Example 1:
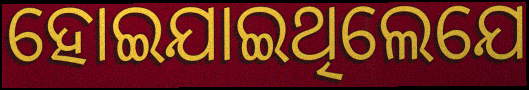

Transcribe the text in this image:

ହୋଇଯାଇଥିଲେଯେ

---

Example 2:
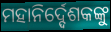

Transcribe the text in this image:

ମହାନିର୍ଦ୍ଦେଶକଙ୍କୁ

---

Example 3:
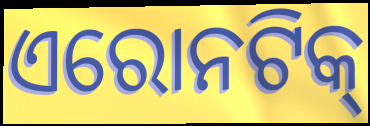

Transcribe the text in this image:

ଏରୋନଟିକ୍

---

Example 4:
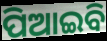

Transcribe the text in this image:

ପିଆଇବି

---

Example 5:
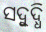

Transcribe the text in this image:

ସଦ୍ବୁଦ୍ଧି